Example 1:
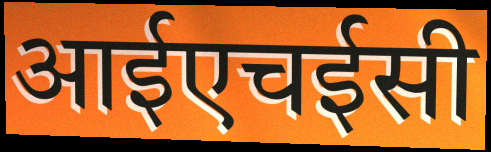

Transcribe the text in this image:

आईएचईसी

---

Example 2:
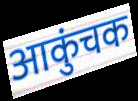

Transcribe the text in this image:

आकुंचक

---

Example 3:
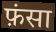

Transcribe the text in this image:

फ़ंसा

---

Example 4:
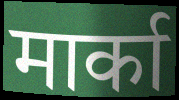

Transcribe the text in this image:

मार्का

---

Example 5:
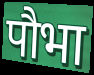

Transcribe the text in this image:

पौभा